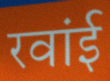
रवांई